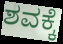
ಶವಕ್ಕೆ